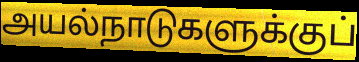
அயல்நாடுகளுக்குப்